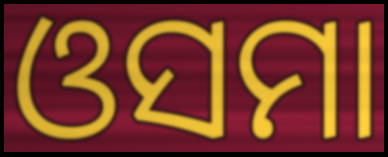
ଓସମା